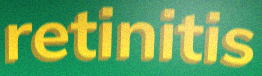
retinitis